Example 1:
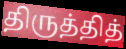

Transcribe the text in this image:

திருத்தித்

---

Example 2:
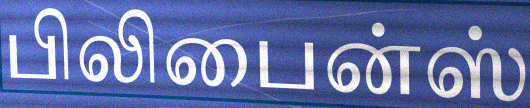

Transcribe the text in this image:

பிலிபைன்ஸ்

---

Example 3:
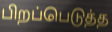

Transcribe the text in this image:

பிறப்பெடுத்த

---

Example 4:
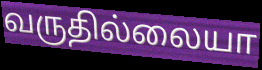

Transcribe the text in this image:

வருதில்லையா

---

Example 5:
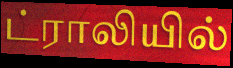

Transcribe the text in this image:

ட்ராலியில்